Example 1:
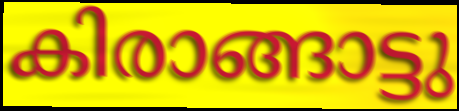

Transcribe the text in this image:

കിരാങ്ങാട്ടു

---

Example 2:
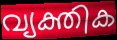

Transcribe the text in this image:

വ്യക്തിക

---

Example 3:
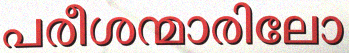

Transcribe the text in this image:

പരീശന്മാരിലോ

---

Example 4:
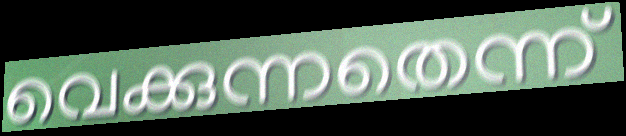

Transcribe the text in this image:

വെക്കുന്നതെന്ന്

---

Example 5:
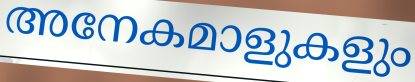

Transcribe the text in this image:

അനേകമാളുകളും